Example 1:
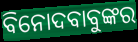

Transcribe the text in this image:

ବିନୋଦବାବୁଙ୍କର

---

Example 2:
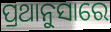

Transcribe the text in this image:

ପ୍ରଥାନୁସାରେ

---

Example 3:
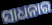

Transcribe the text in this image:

ସାଧନାର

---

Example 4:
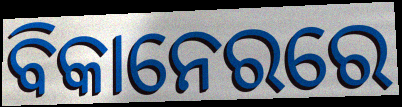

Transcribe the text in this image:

ବିକାନେରରେ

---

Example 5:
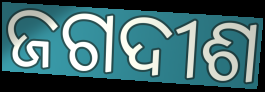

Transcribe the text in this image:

ଜଗଦୀଶ